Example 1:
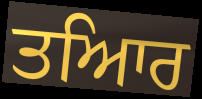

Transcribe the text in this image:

ਤਆਿਰ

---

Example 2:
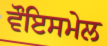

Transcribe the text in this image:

ਵੌਇਸਮੇਲ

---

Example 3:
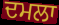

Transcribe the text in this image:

ਦਮਲਾ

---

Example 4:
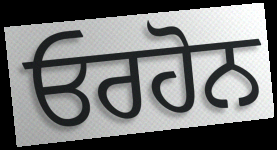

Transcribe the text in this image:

ਓਰਹੋਨ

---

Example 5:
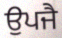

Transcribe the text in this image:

ਉਪਜੈ